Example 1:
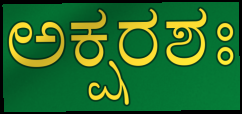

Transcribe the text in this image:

ಅಕ್ಷರಶಃ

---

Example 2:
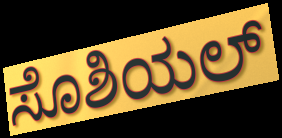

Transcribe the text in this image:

ಸೊಶಿಯಲ್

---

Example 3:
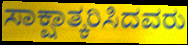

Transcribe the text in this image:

ಸಾಕ್ಷಾತ್ಕರಿಸಿದವರು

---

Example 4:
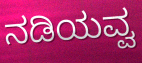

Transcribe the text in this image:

ನಡಿಯವ್ವ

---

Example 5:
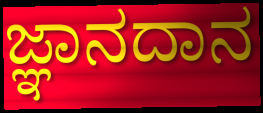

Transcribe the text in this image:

ಜ್ಞಾನದಾನ